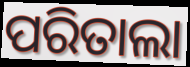
ପରିତାଲା